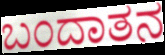
ಬಂದಾತನ